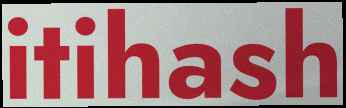
itihash